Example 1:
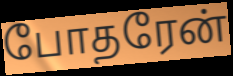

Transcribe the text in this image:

போதரேன்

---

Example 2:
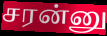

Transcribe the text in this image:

சரன்னு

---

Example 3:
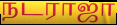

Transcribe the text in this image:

நடராஜா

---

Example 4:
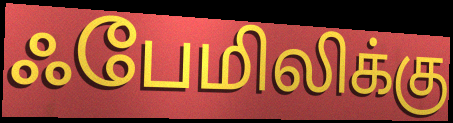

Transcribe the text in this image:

ஃபேமிலிக்கு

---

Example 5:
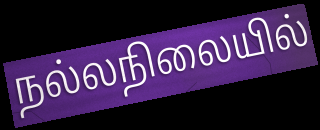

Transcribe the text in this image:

நல்லநிலையில்